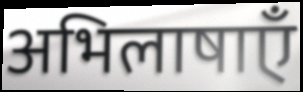
अभिलाषाएँ